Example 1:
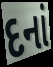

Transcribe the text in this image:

દનાં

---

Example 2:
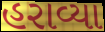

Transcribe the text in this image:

હરાવ્યા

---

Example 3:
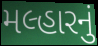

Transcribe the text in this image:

મલ્હારનું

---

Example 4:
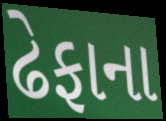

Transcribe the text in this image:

ઢેફાના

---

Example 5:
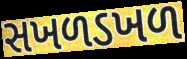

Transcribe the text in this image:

સખળડખળ